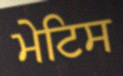
ਮੇਟਿਸ